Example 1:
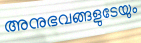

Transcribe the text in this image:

അനുഭവങ്ങളുടേയും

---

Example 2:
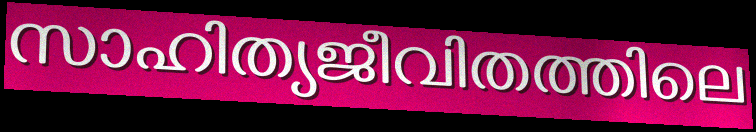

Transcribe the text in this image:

സാഹിത്യജീവിതത്തിലെ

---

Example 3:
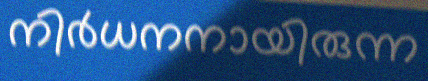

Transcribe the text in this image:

നിർധനനായിരുന്ന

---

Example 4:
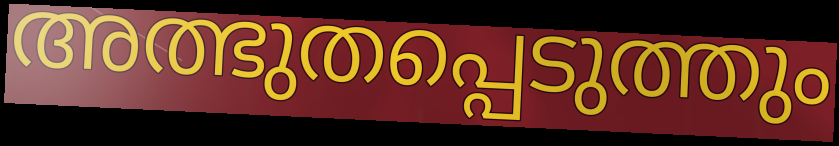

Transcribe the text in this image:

അത്ഭുതപ്പെടുത്തും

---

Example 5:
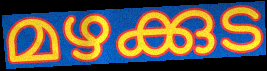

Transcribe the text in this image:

മഴക്കുട